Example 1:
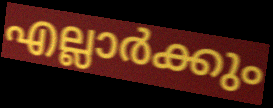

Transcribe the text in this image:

എല്ലാർക്കും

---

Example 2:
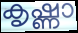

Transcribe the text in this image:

കൃഷ്ണാ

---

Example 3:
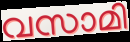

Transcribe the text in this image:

വസാമി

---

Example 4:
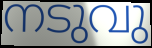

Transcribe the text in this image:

നടുവു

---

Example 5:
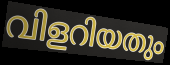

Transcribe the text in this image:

വിളറിയതും